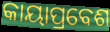
କାୟାପ୍ରବେଶ